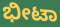
ಭೀಟಾ